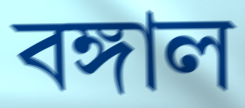
বঙ্গাল